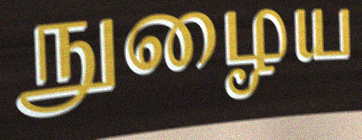
நுழைய